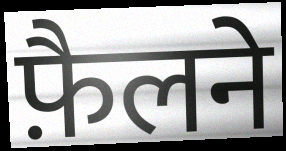
फ़ैलने